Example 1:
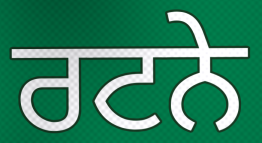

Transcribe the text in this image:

ਰਟਨੇ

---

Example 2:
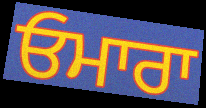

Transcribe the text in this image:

ਓਮਾਰਾ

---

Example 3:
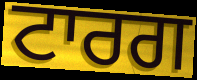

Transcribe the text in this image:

ਟਾਰਗ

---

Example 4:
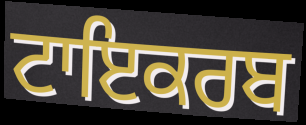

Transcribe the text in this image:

ਟਾਇਕਰਬ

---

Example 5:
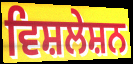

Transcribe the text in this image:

ਵਿਸ਼ਲੇਸ਼ਨ